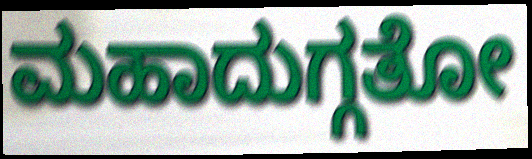
ಮಹಾದುಗ್ಗತೋ